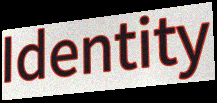
Identity